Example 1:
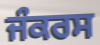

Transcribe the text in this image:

ਜੰਕਰਸ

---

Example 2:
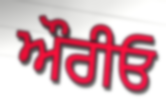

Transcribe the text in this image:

ਔਰੀਓ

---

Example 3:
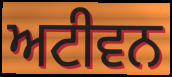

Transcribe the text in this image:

ਅਟੀਵਨ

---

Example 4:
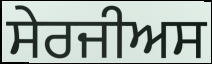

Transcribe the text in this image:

ਸੇਰਜੀਅਸ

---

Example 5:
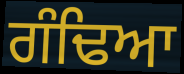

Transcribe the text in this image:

ਗੰਢਿਆ